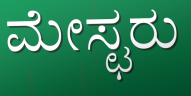
ಮೇಸ್ಟರು